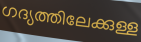
ഗദ്യത്തിലേക്കുള്ള